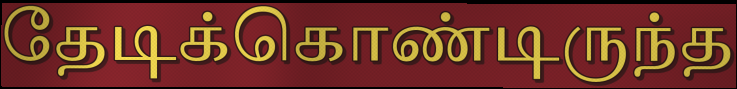
தேடிக்கொண்டிருந்த